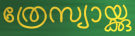
ത്രേസ്യായ്ക്കു